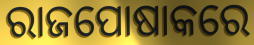
ରାଜପୋଷାକରେ